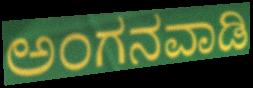
ಅಂಗನವಾಡಿ